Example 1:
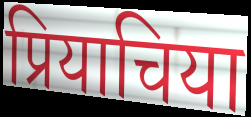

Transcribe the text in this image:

प्रियाचिया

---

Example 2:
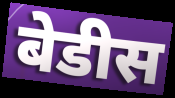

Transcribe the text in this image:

बेडीस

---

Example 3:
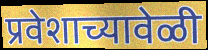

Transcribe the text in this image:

प्रवेशाच्यावेळी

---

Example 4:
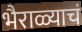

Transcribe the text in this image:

भैराळ्याचं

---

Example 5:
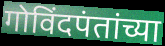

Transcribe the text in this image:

गोविंदपंतांच्या